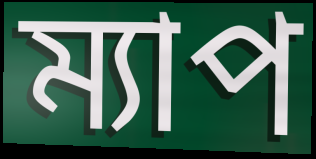
ম্যাপ